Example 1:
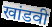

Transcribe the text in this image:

खांडवी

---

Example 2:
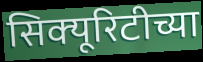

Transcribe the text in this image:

सिक्यूरिटीच्या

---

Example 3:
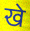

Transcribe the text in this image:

खे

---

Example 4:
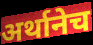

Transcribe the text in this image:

अर्थानेच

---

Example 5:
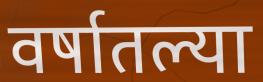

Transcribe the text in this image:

वर्षातल्या